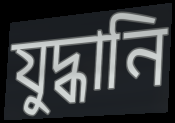
যুদ্ধানি